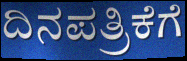
ದಿನಪತ್ರಿಕೆಗೆ